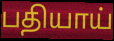
பதியாய்